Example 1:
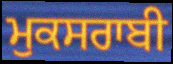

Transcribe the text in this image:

ਮੁਕਸਰਾਬੀ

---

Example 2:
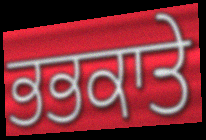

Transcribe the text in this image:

ਭਭਕਾਤੇ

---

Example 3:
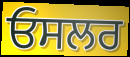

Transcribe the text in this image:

ਓਸਲਰ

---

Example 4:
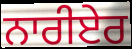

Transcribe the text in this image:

ਨਾਰੀਏਰ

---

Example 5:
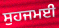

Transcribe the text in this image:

ਸੁਹਜਮਈ